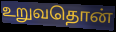
உறுவதொன்